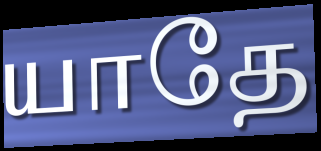
யாதே